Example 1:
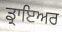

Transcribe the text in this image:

ਡ੍ਰਾਇਅਰ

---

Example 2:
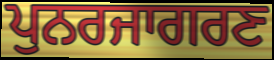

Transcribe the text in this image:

ਪੁਨਰਜਾਗਰਣ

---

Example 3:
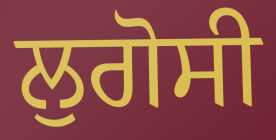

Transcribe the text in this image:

ਲੁਗੋਸੀ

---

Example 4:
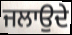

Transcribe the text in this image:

ਜਲਾਉਦੇ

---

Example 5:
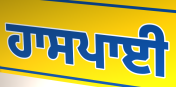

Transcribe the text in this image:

ਹਾਸਪਾਈ